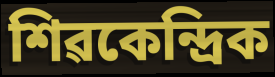
শিৱকেন্দ্ৰিক